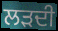
ਲੜਦੀ